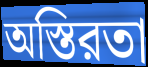
অস্তিরতা